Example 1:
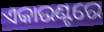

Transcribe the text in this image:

ଏକାଉଣ୍ଟରେ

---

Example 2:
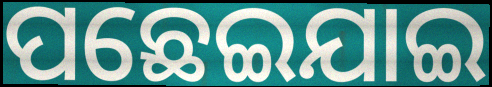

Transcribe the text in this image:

ପଛେଇଯାଇ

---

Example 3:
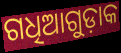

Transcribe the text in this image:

ଗଧିଆଗୁଡ଼ାକ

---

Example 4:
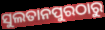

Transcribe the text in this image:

ସୁଲତାନପୁରଠାରୁ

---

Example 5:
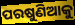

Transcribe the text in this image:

ପରଷୁଣିଆକୁ